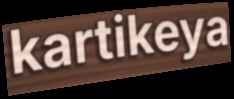
kartikeya